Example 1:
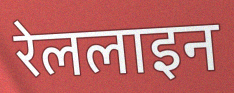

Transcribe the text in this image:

रेललाइन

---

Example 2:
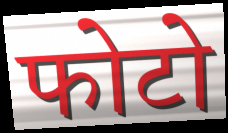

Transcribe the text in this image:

फोटो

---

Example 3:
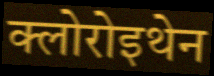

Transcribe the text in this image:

क्लोरोइथेन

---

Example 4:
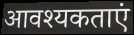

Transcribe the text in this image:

आवश्यकताएं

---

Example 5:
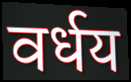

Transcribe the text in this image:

वर्धय